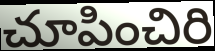
చూపించిరి